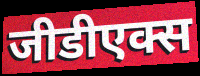
जीडीएक्स